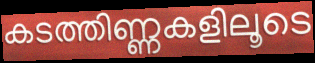
കടത്തിണ്ണകളിലൂടെ